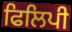
ਫਿਲਿਪੀ